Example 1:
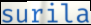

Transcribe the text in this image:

surila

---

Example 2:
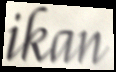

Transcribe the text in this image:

ikan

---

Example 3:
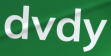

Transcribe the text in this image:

dvdy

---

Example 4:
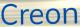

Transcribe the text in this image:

Creon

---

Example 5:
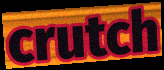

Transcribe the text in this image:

crutch